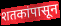
शतकांपासून